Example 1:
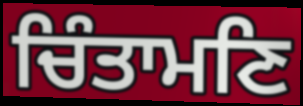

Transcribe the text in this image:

ਚਿੰਤਾਮਣਿ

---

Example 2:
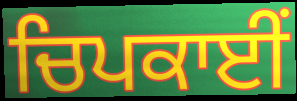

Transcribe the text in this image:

ਚਿਪਕਾਈਂ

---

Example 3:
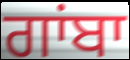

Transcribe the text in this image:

ਗਾਂਬਾ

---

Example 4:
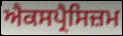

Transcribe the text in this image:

ਐਕਸਪ੍ਰੈਸਿਜ਼ਮ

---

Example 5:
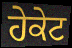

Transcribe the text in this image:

ਹੇਕੇਟ